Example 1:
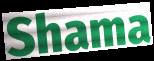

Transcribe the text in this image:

Shama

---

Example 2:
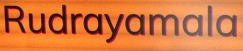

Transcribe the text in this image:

Rudrayamala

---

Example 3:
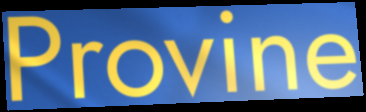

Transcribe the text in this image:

Provine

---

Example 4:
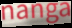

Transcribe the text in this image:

nanga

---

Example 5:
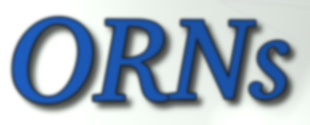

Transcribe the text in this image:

ORNs